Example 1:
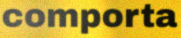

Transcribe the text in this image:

comporta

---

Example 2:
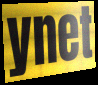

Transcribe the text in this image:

ynet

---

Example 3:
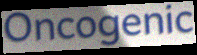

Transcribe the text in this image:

Oncogenic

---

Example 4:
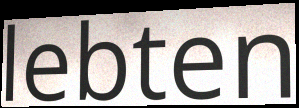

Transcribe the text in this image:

lebten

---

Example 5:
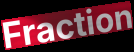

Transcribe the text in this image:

Fraction